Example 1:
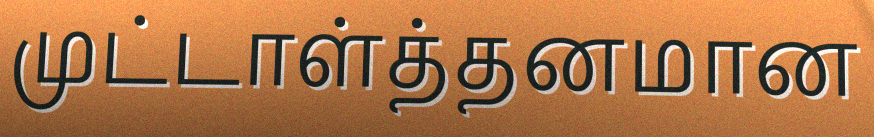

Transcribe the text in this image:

முட்டாள்த்தனமான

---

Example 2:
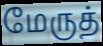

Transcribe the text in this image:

மேருத்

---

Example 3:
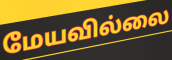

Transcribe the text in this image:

மேயவில்லை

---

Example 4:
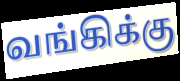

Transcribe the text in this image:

வங்கிக்கு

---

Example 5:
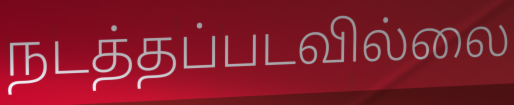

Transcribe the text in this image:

நடத்தப்படவில்லை